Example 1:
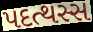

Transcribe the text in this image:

પદત્થસ્સ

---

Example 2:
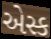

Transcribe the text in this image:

એસ્ક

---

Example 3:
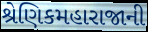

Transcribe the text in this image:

શ્રેણિકમહારાજાની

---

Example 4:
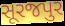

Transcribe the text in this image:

સૂરજપુર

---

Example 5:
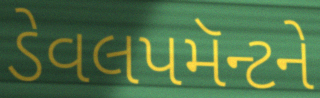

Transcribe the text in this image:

ડેવલપમૅન્ટને